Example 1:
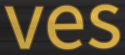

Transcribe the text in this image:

ves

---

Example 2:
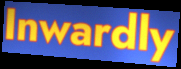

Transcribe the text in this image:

Inwardly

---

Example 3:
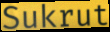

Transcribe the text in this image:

Sukrut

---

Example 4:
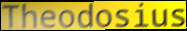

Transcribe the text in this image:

Theodosius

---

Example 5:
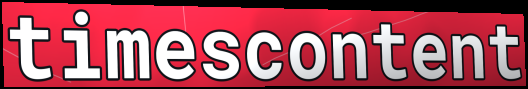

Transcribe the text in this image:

timescontent